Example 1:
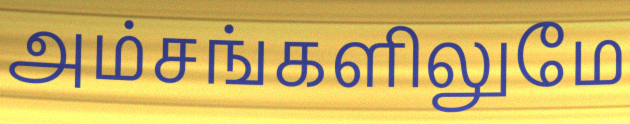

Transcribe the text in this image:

அம்சங்களிலுமே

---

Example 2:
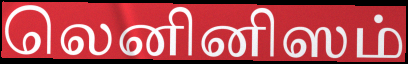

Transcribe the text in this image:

லெனினிஸம்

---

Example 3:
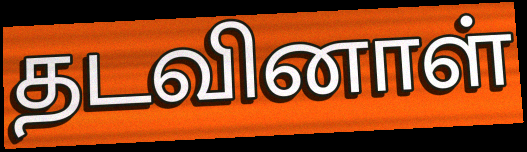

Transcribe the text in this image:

தடவினாள்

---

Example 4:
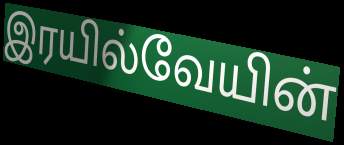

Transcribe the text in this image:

இரயில்வேயின்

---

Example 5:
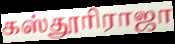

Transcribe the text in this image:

கஸ்தூரிராஜா